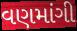
વણમાંગી